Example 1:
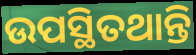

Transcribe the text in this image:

ଉପସ୍ଥିତଥାନ୍ତି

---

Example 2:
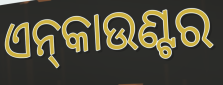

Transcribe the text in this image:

ଏନ୍‌କାଉଣ୍ଟର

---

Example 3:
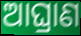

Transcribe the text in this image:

ଆଘ୍ରାଣ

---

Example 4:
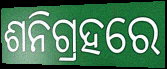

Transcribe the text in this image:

ଶନିଗ୍ରହରେ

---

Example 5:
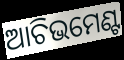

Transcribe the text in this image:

ଆଚିଭମେଣ୍ଟ